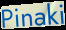
Pinaki